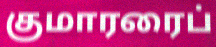
குமாரரைப்